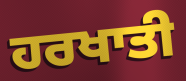
ਹਰਖਾਤੀ